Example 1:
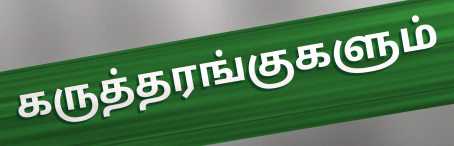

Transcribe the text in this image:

கருத்தரங்குகளும்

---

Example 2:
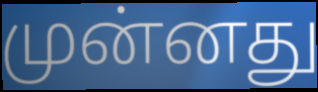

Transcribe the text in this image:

முன்னது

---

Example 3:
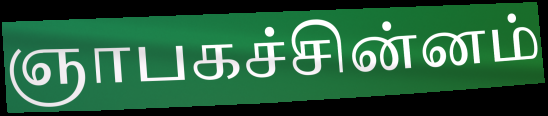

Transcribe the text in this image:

ஞாபகச்சின்னம்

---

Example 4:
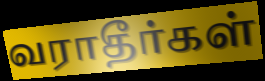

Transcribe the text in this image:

வராதீர்கள்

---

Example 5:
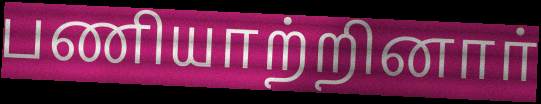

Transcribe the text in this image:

பணியாற்றினார்